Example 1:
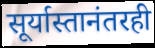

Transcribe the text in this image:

सूर्यास्तानंतरही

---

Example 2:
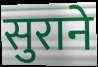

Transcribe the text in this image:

सुराने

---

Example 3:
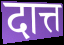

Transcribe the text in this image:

दात्त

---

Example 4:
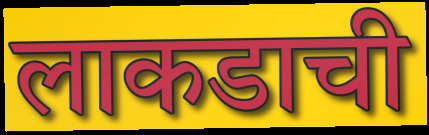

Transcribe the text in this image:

लाकडाची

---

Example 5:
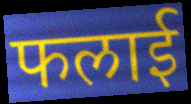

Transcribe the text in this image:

फलाई